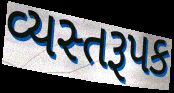
વ્યસ્તરૂપક